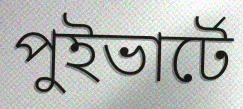
পুইভার্টে